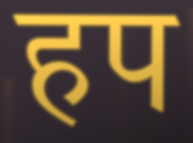
हप